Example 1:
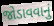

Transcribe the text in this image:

જોડાવવાનું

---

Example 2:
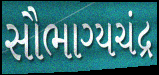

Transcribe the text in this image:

સૌભાગ્યચંદ્ર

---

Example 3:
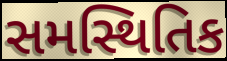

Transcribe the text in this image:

સમસ્થિતિક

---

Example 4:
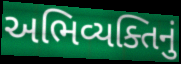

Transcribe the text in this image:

અભિવ્યક્તિનું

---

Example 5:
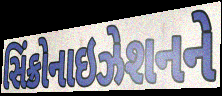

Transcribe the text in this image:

સિંક્રોનાઇઝેશનને